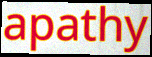
apathy